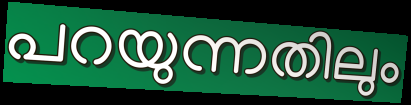
പറയുന്നതിലും